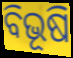
ବିଭୂଷି